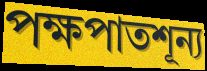
পক্ষপাতশূন্য